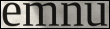
emnu